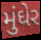
મુંઘેર